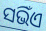
ସଭିଁଏ